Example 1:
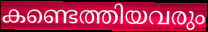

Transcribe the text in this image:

കണ്ടെത്തിയവരും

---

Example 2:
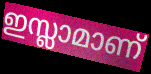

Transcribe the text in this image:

ഇസ്ലാമാണ്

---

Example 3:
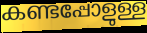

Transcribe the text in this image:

കണ്ടപ്പോളുള്ള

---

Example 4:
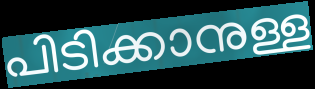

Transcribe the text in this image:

പിടിക്കാനുള്ള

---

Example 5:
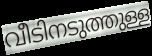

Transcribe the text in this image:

വീടിനടുത്തുള്ള